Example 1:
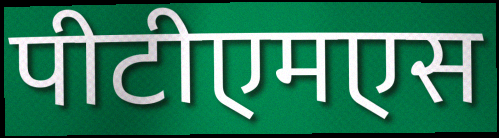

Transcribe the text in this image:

पीटीएमएस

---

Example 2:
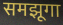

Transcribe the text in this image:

समझूगा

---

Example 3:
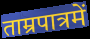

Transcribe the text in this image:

ताम्रपात्रमें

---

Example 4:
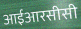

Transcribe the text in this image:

आईआरसीसी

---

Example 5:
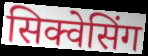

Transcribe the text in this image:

सिक्वेसिंग